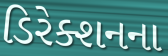
ડિરેક્શનના